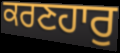
ਕਰਣਹਾਰੁ